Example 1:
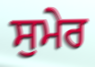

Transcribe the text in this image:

ਸੁਮੇਰ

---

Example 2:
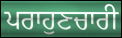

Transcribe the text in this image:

ਪਰਾਹੁਣਚਾਰੀ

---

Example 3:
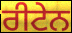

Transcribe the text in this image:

ਰੀਟੇਨ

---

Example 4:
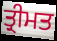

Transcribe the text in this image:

ਤ੍ਰੀਮਤ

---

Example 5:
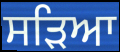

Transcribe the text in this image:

ਸੜਿਆ